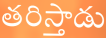
తరిస్తాడు